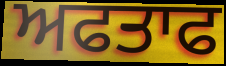
ਅਫਤਾਫ